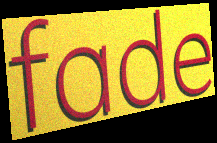
fade